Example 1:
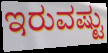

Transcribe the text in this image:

ಇರುವಷ್ಟು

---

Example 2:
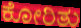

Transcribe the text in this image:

ಕೋರಿತು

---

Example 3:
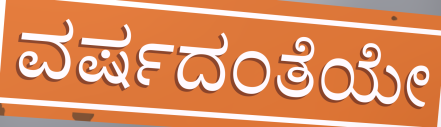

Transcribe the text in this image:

ವರ್ಷದಂತೆಯೇ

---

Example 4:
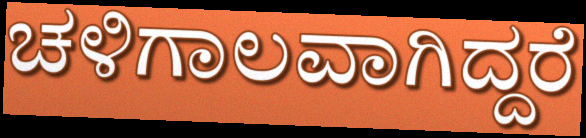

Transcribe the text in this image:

ಚಳಿಗಾಲವಾಗಿದ್ದರೆ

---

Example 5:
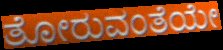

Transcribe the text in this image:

ತೋರುವಂತೆಯೇ